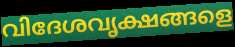
വിദേശവൃക്ഷങ്ങളെ